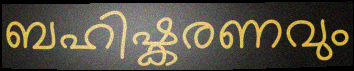
ബഹിഷ്കരണവും